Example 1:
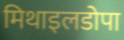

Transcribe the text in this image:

मिथाइलडोपा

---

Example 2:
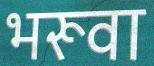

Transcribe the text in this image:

भरूवा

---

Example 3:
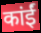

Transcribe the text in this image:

कांईं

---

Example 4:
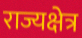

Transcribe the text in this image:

राज्यक्षेत्र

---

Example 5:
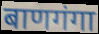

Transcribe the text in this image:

बाणगंगा